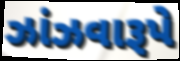
ઝાંઝવારૂપે